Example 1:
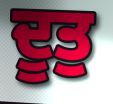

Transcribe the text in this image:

ਦੂਤੁ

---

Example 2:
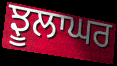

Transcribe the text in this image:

ਝੂਲਾਘਰ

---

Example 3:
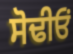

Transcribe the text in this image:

ਸੋਢੀਓਂ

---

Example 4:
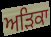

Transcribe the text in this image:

ਅੜਿਕਾ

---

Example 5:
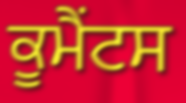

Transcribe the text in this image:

ਕੂਮੈਂਟਸ